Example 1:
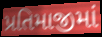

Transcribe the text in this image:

પ્રતિમાજીમાં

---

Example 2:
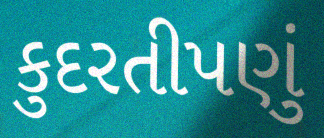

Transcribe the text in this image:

કુદરતીપણું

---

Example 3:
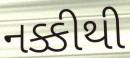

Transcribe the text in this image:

નક્કીથી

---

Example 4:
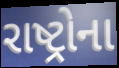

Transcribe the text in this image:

રાષ્ટ્રોના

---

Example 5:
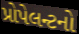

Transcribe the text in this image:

પ્રોપેલન્ટનો